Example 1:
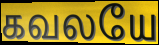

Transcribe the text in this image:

கவலயே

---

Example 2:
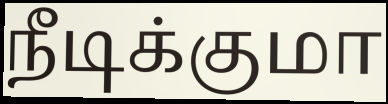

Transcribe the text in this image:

நீடிக்குமா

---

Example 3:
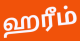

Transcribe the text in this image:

ஹரீம்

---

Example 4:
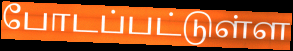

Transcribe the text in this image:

போடப்பட்டுள்ள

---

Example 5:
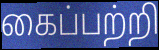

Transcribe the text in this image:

கைப்பற்றி